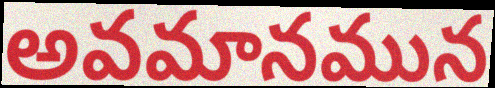
అవమానమున